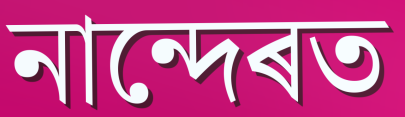
নান্দেৰত